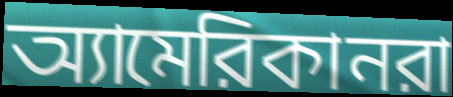
অ্যামেরিকানরা